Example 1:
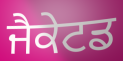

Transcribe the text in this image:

ਜੈਕੇਟਡ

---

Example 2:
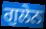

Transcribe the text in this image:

ਗੁਲੇਨ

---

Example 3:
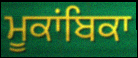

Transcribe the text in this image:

ਮੂਕਾਂਬਿਕਾ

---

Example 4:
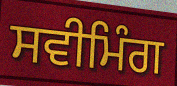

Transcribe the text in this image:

ਸਵੀਮਿੰਗ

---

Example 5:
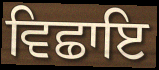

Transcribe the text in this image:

ਵਿਛਾਇ